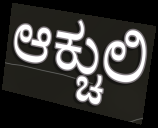
ಆಕ್ಚುಲಿ